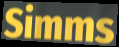
Simms